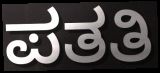
ಪತತಿ